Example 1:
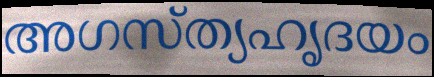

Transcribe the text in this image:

അഗസ്ത്യഹൃദയം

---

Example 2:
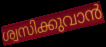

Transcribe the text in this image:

ശ്വസിക്കുവാൻ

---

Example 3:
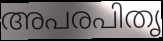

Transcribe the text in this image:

അപരപിതൃ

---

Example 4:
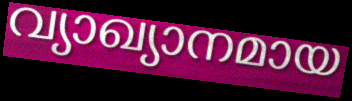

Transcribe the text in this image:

വ്യാഖ്യാനമായ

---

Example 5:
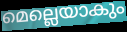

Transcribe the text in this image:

മെല്ലെയാകും